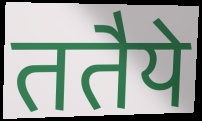
ततैये